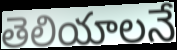
తెలియాలనే